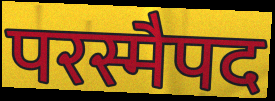
परस्मैपद